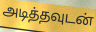
அடித்தவுடன்